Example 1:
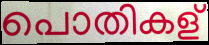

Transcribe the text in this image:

പൊതികള്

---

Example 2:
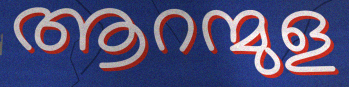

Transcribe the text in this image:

ആറന്മുള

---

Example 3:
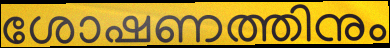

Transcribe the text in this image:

ശോഷണത്തിനും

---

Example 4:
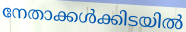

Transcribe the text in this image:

നേതാക്കൾക്കിടയിൽ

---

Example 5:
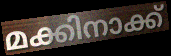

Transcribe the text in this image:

മക്കിനാക്ക്